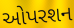
ઓપરશન